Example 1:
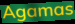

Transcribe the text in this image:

Agamas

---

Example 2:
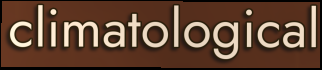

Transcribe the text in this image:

climatological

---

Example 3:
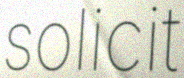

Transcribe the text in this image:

solicit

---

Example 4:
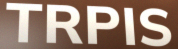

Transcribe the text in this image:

TRPIS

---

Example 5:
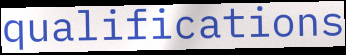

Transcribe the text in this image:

qualifications